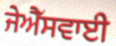
ਜੇਐੱਸਵਾਈ